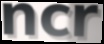
ncr